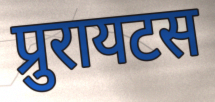
प्रुरायटस